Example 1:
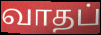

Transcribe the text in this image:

வாதப்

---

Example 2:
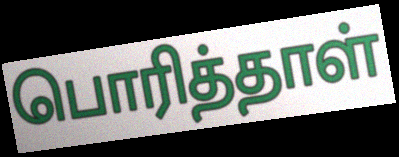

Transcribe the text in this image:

பொரித்தாள்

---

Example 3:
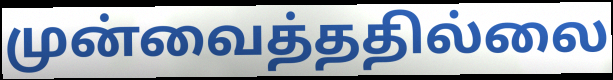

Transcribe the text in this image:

முன்வைத்ததில்லை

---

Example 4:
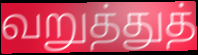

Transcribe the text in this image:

வறுத்துத்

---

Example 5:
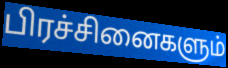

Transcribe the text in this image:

பிரச்சினைகளும்